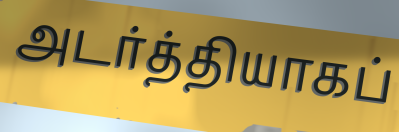
அடர்த்தியாகப்